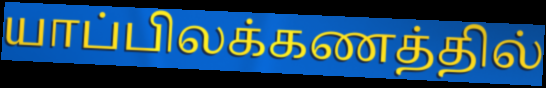
யாப்பிலக்கணத்தில்